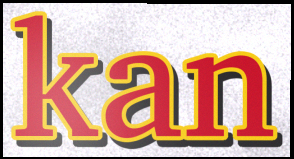
kan